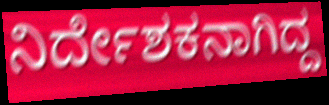
ನಿರ್ದೇಶಕನಾಗಿದ್ದ